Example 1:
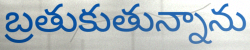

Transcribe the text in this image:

బ్రతుకుతున్నాను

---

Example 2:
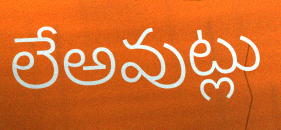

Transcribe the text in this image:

లేఅవుట్లు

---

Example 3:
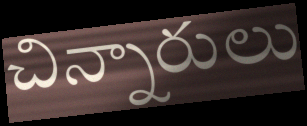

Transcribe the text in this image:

చిన్నారులు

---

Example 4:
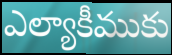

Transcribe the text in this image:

ఎల్యాకీముకు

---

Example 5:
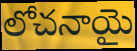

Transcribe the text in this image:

లోచనాయై